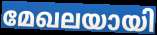
മേഖലയായി